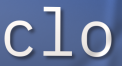
clo